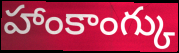
హాంకాంగ్కు